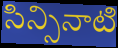
సిన్సినాటి